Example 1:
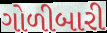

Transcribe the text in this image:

ગોળીબારી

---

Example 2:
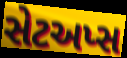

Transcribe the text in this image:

સેટઅપ્સ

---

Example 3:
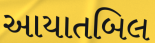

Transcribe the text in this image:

આયાતબિલ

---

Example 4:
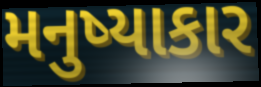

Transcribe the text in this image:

મનુષ્યાકાર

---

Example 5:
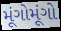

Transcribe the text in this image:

મૂંગોમૂંગો